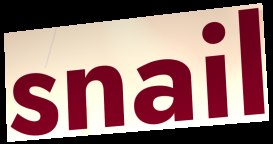
snail